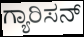
ಗ್ಯಾರಿಸನ್